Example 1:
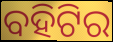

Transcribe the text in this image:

ବହିଟିର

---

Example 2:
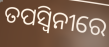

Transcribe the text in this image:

ତପସ୍ଵିନୀରେ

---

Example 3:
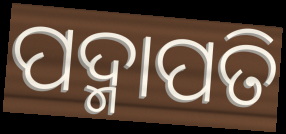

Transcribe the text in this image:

ପଦ୍ମାପତି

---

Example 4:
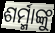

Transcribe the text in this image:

ଶର୍ମ୍ମାଙ୍କୁ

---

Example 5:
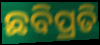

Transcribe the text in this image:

ଛବିପ୍ରତି